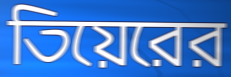
তিয়েরের